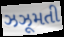
ઝઝૂમતી